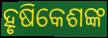
ହୃଷିକେଶଙ୍କ